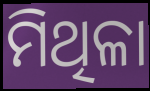
ମିଥିଳା